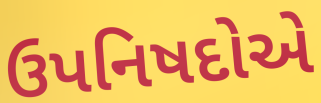
ઉપનિષદોએ